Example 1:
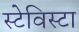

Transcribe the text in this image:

स्टेविस्टा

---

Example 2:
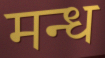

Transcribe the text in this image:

मन्ध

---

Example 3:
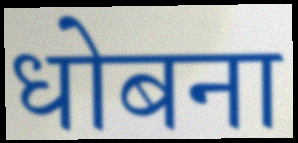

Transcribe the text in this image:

धोबना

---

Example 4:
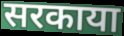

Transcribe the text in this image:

सरकाया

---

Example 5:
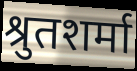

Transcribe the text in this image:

श्रुतशर्मा